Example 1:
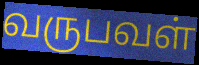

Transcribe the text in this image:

வருபவள்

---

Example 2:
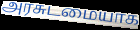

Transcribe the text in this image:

அரசுடமையாக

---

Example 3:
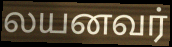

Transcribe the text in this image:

லயனவர்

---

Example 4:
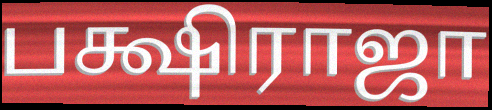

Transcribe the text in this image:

பக்ஷிராஜா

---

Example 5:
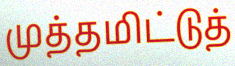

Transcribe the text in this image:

முத்தமிட்டுத்